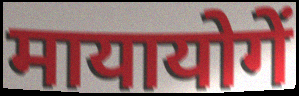
मायायोगें